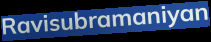
Ravisubramaniyan